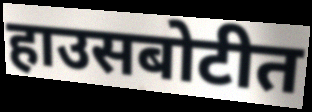
हाउसबोटीत